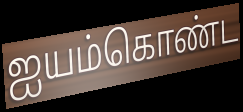
ஐயம்கொண்ட